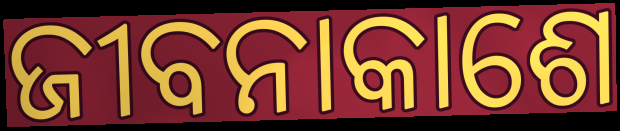
ଜୀବନାକାଶେ